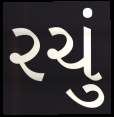
રચું